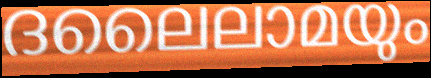
ദലൈലാമയും